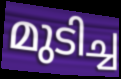
മുടിച്ച